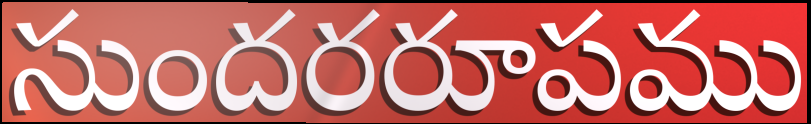
సుందరరూపము